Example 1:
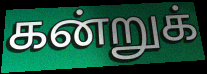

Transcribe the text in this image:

கன்றுக்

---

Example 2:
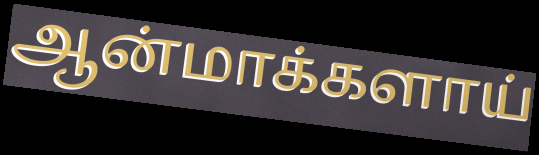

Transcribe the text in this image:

ஆன்மாக்களாய்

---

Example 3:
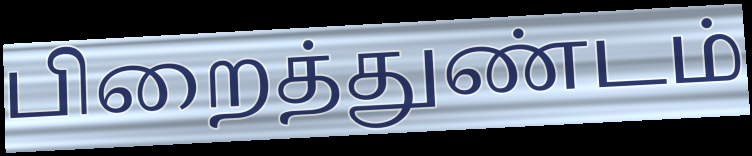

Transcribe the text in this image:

பிறைத்துண்டம்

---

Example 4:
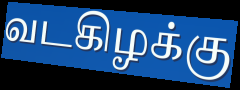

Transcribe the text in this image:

வடகிழக்கு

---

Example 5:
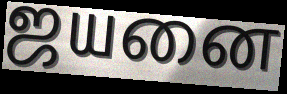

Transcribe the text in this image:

ஜயனை